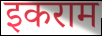
इकराम